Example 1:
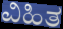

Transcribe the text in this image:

ವಿಹಿತ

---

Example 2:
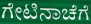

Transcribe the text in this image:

ಗೇಟಿನಾಚೆಗೆ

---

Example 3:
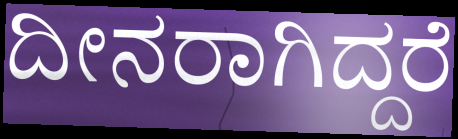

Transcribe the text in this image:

ದೀನರಾಗಿದ್ದರೆ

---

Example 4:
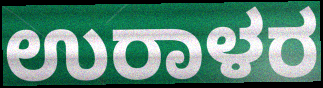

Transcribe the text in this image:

ಉರಾಳರ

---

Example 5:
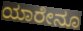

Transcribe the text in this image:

ಯಾರೇನೂ